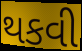
થકવી